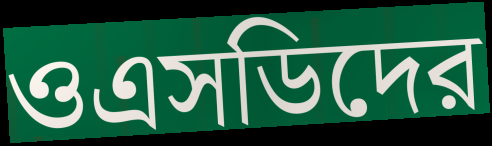
ওএসডিদের